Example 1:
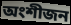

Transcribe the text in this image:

অংশীজন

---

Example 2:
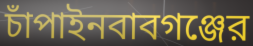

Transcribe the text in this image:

চাঁপাইনবাবগঞ্জের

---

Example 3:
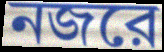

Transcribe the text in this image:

নজরে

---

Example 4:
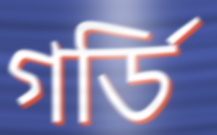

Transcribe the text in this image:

গর্ডি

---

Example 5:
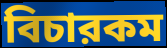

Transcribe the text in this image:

বিচারকম